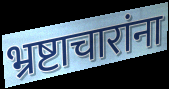
भ्रष्टाचारांना